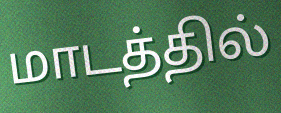
மாடத்தில்